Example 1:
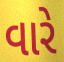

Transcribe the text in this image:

વારે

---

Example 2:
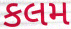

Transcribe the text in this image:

કલમ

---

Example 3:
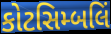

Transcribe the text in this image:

કોટસિમ્બલિં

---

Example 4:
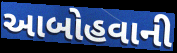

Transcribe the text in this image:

આબોહવાની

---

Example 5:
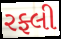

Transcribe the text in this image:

રફ્લી